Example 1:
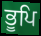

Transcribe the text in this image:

ਭੂਪਿ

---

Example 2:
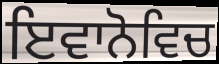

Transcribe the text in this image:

ਇਵਾਨੋਵਿਚ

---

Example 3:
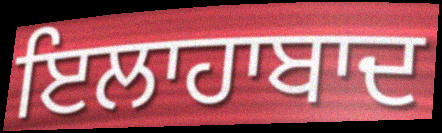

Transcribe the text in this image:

ਇਲਾਹਾਬਾਦ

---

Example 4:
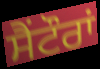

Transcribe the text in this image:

ਸੈਂਟੌਰਾਂ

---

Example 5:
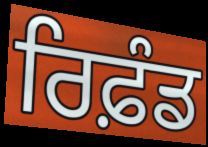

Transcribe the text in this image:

ਰਿਫ਼ੰਡ